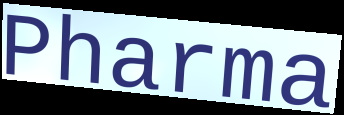
Pharma